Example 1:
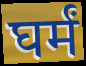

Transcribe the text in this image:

घर्मं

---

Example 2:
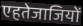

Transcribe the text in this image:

एहतेजाजियों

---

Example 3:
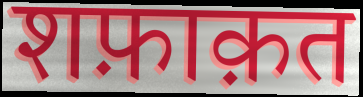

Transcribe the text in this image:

शफ़ाक़त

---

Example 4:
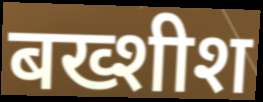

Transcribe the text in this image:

बख्शीश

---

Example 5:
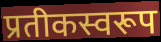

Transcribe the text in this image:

प्रतीकस्वरूप